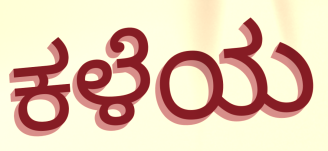
ಕಳೆಯ